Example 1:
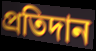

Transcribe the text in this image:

প্রতিদান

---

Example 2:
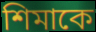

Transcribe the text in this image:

শিমাকে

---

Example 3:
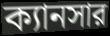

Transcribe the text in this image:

ক্যানসার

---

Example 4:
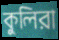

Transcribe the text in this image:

কুলিরা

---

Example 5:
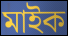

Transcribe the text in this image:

মাইক